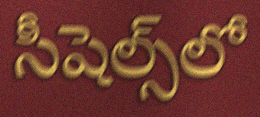
సీషెల్స్‌లో